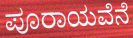
ಪೂರಾಯವೆನೆ